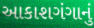
આકાશગંગાનું